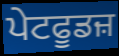
ਪੇਟਫੂਡਜ਼